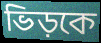
ভিড়কে